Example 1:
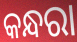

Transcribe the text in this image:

କନ୍ଧରା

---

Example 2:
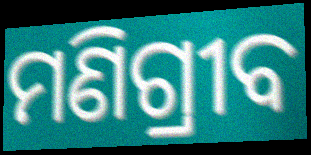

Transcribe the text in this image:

ମଣିଗ୍ରୀବ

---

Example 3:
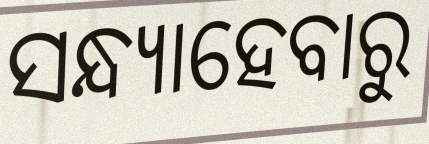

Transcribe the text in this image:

ସନ୍ଧ୍ୟାହେବାରୁ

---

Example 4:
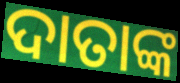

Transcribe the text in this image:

ଦାତାଙ୍କ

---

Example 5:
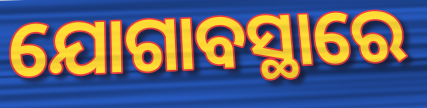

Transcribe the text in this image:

ଯୋଗାବସ୍ଥାରେ